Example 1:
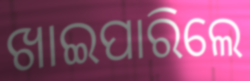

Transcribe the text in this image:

ଖାଇପାରିଲେ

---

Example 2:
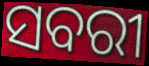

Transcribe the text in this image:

ସବରୀ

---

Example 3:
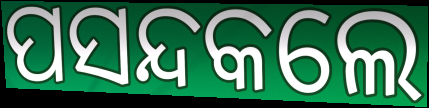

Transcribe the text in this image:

ପସନ୍ଦକଲେ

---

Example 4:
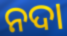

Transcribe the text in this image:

ନଦା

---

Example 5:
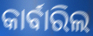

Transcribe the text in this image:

କାର୍ବାରିଲ